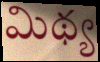
మిథ్య